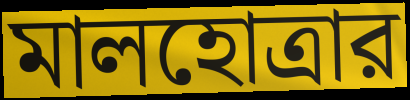
মালহোত্রার